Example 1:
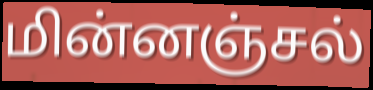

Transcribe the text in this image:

மின்னஞ்சல்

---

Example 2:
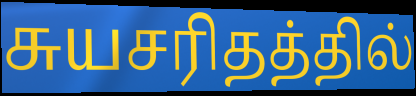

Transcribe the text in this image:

சுயசரிதத்தில்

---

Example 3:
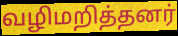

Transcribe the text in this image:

வழிமறித்தனர்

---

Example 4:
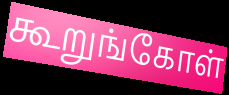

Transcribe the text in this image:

கூறுங்கோள்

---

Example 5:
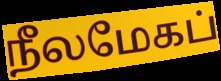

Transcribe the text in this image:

நீலமேகப்